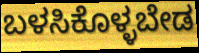
ಬಳಸಿಕೊಳ್ಳಬೇಡ